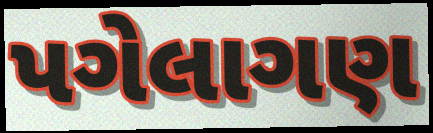
પગેલાગણ